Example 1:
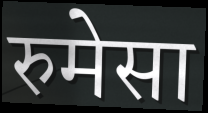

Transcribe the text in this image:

रुमेसा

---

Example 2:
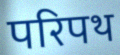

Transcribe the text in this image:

परिपथ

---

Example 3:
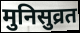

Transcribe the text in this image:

मुनिसुव्रत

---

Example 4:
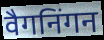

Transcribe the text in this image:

वैगनिंगन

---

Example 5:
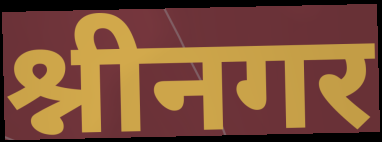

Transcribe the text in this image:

श्नीनगर